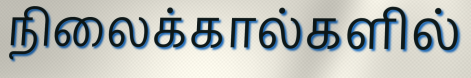
நிலைக்கால்களில்